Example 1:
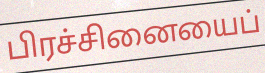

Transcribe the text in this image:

பிரச்சினையைப்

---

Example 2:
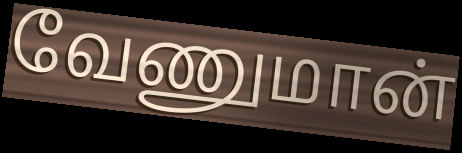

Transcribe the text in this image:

வேணுமான்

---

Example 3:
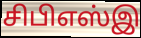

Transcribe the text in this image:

சிபிஎஸ்இ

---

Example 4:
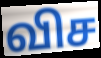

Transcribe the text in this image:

விச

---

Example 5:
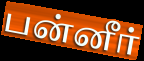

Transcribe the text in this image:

பன்னீர்